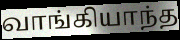
வாங்கியாந்த